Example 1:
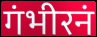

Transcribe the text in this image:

गंभीरनं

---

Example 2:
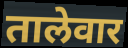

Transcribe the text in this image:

तालेवार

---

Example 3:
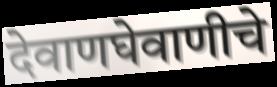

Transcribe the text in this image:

देवाणघेवाणीचे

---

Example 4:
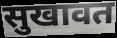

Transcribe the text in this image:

सुखावत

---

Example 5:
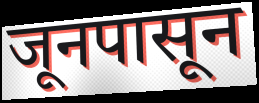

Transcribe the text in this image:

जूनपासून